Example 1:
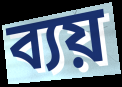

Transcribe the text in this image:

ব্যয়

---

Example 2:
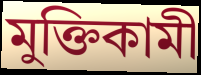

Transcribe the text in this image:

মুক্তিকামী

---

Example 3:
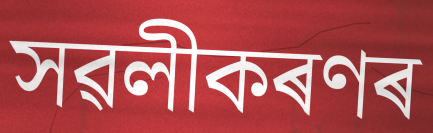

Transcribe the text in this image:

সৱলীকৰণৰ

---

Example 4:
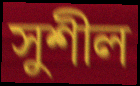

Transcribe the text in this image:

সুশীল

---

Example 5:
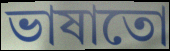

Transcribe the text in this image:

ভাষাতো